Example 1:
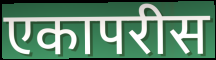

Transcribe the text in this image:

एकापरीस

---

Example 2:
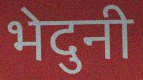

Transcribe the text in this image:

भेदुनी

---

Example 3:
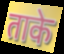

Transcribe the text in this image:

ताके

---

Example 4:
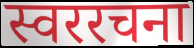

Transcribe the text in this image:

स्वररचना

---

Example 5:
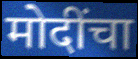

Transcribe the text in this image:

मोदींचा